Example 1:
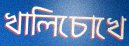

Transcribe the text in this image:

খালিচোখে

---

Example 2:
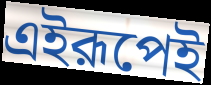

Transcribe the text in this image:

এইরূপেই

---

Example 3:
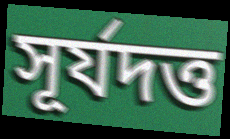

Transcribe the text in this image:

সূর্যদত্ত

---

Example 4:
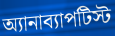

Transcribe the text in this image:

অ্যানাব্যাপটিস্ট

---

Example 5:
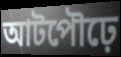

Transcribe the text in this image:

আটপৌঢ়ে